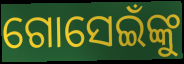
ଗୋସେଇଁଙ୍କୁ